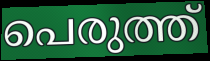
പെരുത്ത്